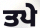
ਤਪੇ